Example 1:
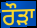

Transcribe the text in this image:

ਰੌੜਾ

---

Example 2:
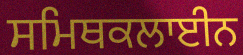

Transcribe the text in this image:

ਸਮਿਥਕਲਾਈਨ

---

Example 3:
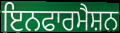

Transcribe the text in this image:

ਇਨਫਾਰਮੈਸ਼ਨ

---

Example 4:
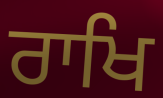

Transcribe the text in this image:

ਰਾਖਿ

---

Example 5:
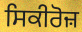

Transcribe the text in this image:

ਸਿਕੀਰੋਜ਼